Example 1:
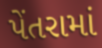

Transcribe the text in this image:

પેંતરામાં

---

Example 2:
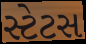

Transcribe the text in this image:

સ્ટેટસ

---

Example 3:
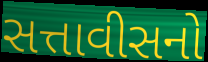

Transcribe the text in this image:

સત્તાવીસનો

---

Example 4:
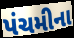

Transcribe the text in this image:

પંચમીના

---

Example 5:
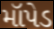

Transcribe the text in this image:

મૉપેડ